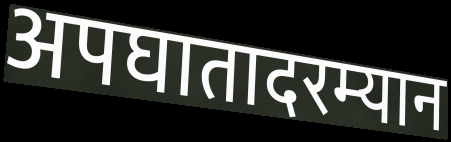
अपघातादरम्यान